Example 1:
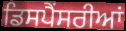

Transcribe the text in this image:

ਡਿਸਪੈਂਸਰੀਆਂ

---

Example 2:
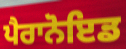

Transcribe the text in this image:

ਪੈਰਾਨੋਇਡ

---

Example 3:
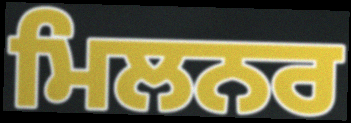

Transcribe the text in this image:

ਮਿਲਨਰ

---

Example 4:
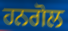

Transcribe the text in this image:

ਹਨਗੋਲ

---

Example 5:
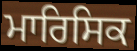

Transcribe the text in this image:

ਮਾਰਿਸਿਕ